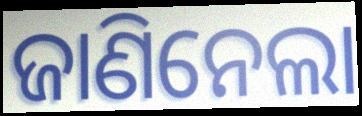
ଜାଣିନେଲା